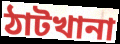
ঠাটখানা